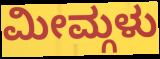
ಮೀಮ್ಗಳು